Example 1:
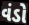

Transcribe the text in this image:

વંડો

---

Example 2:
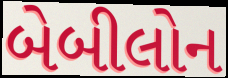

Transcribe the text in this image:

બેબીલોન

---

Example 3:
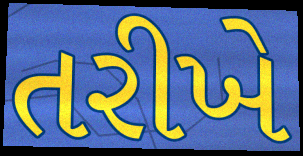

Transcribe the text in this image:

તરીખે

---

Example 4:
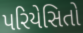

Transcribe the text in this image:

પરિયેસિતો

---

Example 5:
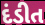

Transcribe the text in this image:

દંડીત